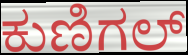
ಕುಣಿಗಲ್